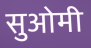
सुओमी